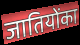
जातियोंका